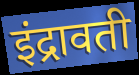
इंद्रावती